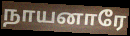
நாயனாரே